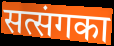
सत्संगका